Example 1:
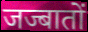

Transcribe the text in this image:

जज्बातों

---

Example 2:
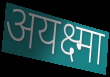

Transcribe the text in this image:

अयक्ष्मा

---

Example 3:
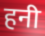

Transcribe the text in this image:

हनी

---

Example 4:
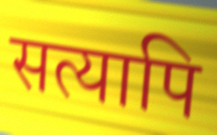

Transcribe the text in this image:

सत्यापि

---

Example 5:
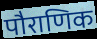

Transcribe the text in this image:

पौराणिक